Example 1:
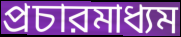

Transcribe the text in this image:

প্রচারমাধ্যম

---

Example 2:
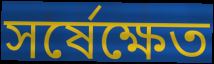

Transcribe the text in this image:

সর্ষেক্ষেত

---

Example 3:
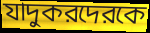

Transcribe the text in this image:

যাদুকরদেরকে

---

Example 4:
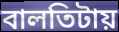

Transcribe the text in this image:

বালতিটায়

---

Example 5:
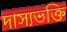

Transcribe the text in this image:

দাস্যভক্তি